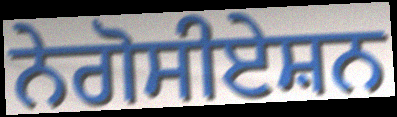
ਨੇਗੋਸੀਏਸ਼ਨ